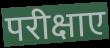
परीक्षाए